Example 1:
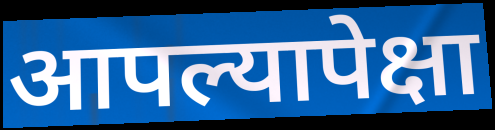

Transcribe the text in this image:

आपल्यापेक्षा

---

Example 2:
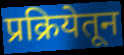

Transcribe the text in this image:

प्रक्रियेतून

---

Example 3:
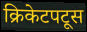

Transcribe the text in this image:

क्रिकेटपटूस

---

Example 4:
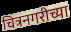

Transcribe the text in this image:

चित्रनगरीच्या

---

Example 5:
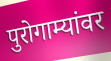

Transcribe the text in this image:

पुरोगाम्यांवर